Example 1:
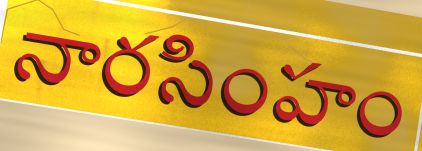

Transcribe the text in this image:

నారసింహం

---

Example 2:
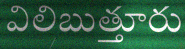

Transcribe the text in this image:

విలిబుత్తూరు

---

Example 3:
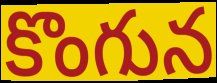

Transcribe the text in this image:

కొంగున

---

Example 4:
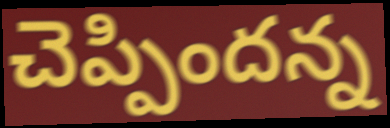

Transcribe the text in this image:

చెప్పిందన్న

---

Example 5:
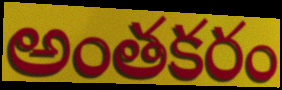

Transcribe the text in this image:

అంతకరం